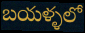
బయళ్ళలో